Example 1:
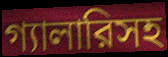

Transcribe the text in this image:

গ্যালারিসহ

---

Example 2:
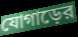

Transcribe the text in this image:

যোগাড়ের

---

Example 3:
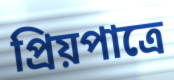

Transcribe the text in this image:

প্রিয়পাত্রে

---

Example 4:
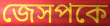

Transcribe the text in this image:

জেসপকে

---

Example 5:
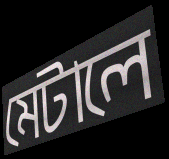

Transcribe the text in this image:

মেটালে